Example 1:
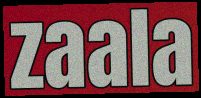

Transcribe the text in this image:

zaala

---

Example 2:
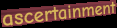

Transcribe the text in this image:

ascertainment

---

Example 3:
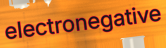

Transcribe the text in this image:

electronegative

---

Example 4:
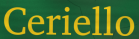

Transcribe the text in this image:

Ceriello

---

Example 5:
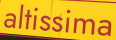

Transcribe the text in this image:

altissima